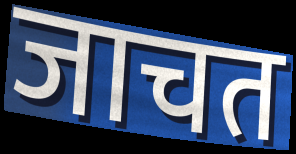
जाचत